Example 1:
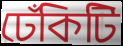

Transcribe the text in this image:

ঢেঁকিটি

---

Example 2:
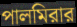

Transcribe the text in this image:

পালমিরার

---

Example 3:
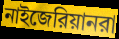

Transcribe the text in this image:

নাইজেরিয়ানরা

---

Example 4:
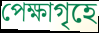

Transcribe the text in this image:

পেক্ষাগৃহে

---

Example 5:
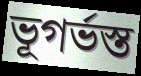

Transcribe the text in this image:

ভূগর্ভস্ত